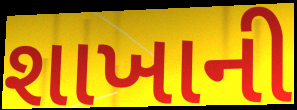
શાખાની